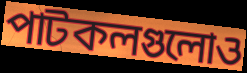
পাটকলগুলোও